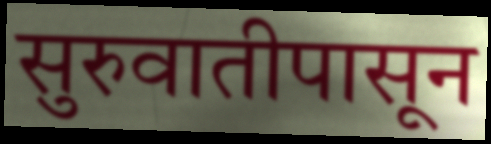
सुरुवातीपासून